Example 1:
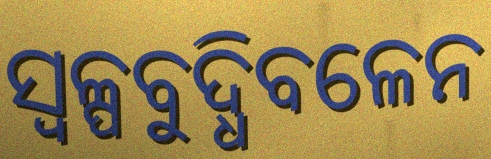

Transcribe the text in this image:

ସ୍ଵଳ୍ପବୁଦ୍ଧିବଳେନ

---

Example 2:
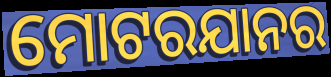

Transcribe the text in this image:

ମୋଟରଯାନର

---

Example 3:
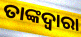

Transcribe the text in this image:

ତାଙ୍କଦ୍ଵାରା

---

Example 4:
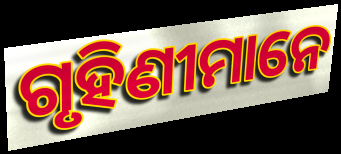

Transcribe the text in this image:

ଗୃହିଣୀମାନେ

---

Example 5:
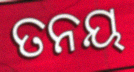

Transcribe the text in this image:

ତନୟ